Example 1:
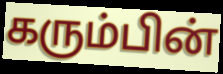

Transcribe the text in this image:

கரும்பின்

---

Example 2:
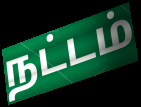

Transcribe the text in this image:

நட்டம்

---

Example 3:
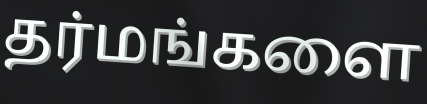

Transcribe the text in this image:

தர்மங்களை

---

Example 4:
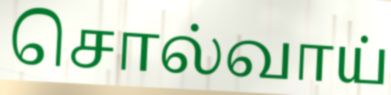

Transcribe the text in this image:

சொல்வாய்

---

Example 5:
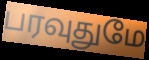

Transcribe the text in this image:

பரவுதுமே